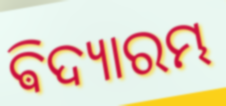
ଵିଦ୍ୟାରମ୍ଭ